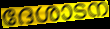
ദേശാടന